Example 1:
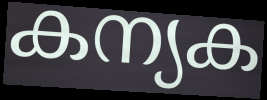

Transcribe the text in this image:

കന്യക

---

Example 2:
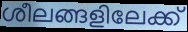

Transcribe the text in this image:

ശീലങ്ങളിലേക്ക്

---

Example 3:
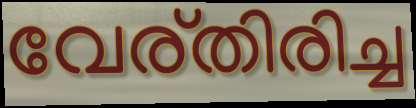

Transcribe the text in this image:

വേര്തിരിച്ച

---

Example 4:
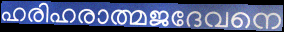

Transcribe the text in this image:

ഹരിഹരാത്മജദേവനെ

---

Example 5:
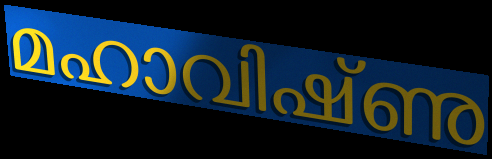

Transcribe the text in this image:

മഹാവിഷ്‌ണു